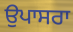
ਉਪਾਸਰਾ